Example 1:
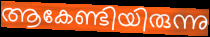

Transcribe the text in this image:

ആകേണ്ടിയിരുന്നു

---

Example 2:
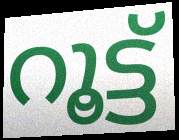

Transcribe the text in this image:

റൂട്ട്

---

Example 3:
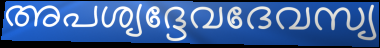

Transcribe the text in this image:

അപശ്യദ്ദേവദേവസ്യ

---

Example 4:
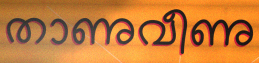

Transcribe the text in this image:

താണുവീണു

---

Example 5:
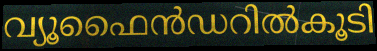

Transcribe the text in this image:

വ്യൂഫൈൻഡറിൽകൂടി